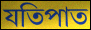
যতিপাত